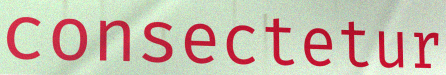
consectetur